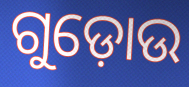
ଗୁଡ଼ୋଉ